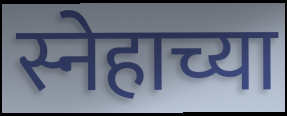
स्नेहाच्या